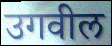
उगवील